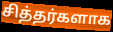
சித்தர்களாக